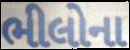
ભીલોના